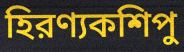
হিরণ্যকশিপু